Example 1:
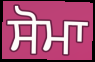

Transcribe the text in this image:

ਸੋਮਾ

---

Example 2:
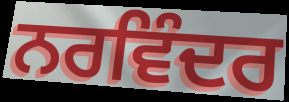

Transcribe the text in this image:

ਨਰਵਿੰਦਰ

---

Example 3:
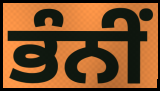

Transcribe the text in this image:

ਭੰਨੀਂ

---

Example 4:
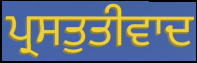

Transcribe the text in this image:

ਪ੍ਰਸਤੁਤੀਵਾਦ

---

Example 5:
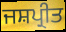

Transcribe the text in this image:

ਜਸ਼ਪ੍ਰੀਤ